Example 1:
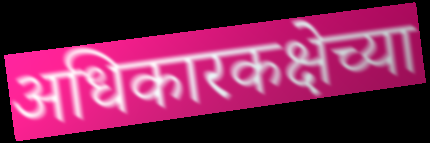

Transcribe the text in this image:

अधिकारकक्षेच्या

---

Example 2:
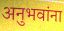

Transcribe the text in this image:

अनुभवांना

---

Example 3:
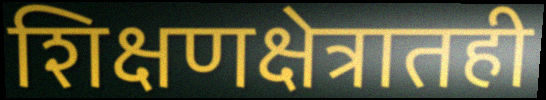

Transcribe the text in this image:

शिक्षणक्षेत्रातही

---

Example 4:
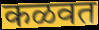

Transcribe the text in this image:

कळवत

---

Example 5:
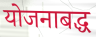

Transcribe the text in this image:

योजनाबद्ध